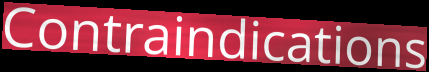
Contraindications